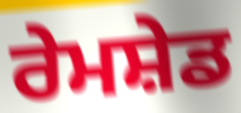
ਰੇਮਸ਼ੇਡ